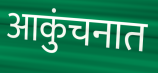
आकुंचनात